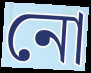
নো